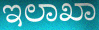
ಇಲಾಖಾ